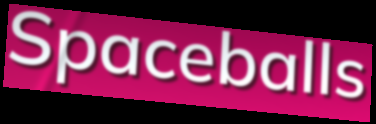
Spaceballs